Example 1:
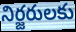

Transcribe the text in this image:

నిర్జరులకు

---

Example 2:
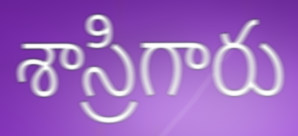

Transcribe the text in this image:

శాస్రిగారు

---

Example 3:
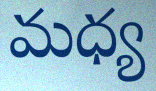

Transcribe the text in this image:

మధ్య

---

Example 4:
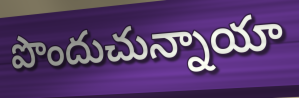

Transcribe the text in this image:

పొందుచున్నాయా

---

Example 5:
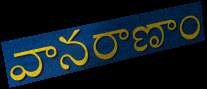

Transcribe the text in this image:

వానరాణాం